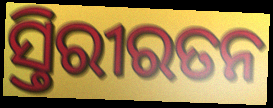
ସ୍ତିରୀରତନ